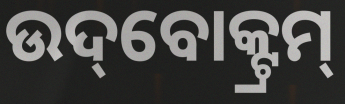
ଉଦ୍‌ବୋକ୍ଟ୍ରମ୍